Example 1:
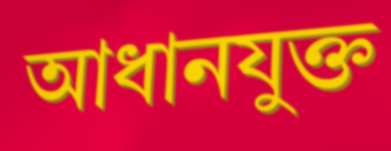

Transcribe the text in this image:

আধানযুক্ত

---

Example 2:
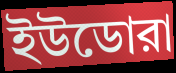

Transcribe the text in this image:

ইউডোরা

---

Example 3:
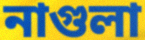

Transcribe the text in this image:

নাগুলা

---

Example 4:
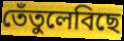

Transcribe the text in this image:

তেঁতুলেবিছে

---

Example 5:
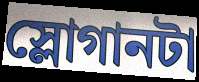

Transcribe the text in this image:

স্লোগানটা